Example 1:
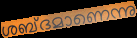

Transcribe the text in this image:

ശബ്ദമാണെന്നു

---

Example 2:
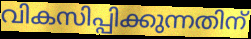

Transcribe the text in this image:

വികസിപ്പിക്കുന്നതിന്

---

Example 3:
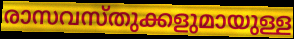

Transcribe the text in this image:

രാസവസ്തുക്കളുമായുള്ള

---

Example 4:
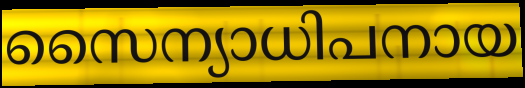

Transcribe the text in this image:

സൈന്യാധിപനായ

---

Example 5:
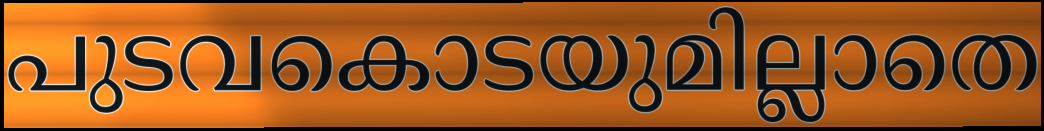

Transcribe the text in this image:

പുടവകൊടയുമില്ലാതെ